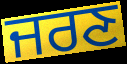
ਜਰਣ